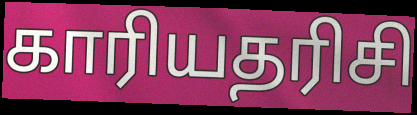
காரியதரிசி